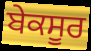
ਬੇਕਸੂਰ